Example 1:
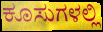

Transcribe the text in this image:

ಕೂಸುಗಳಲ್ಲಿ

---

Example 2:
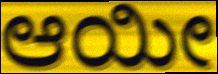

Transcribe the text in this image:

ಆಯೀ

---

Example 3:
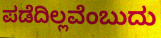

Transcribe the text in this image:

ಪಡೆದಿಲ್ಲವೆಂಬುದು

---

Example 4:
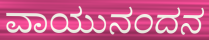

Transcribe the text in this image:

ವಾಯುನಂದನ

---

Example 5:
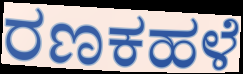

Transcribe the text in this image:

ರಣಕಹಳೆ